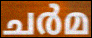
ചർമ